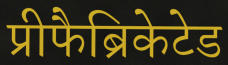
प्रीफैब्रिकेटेड